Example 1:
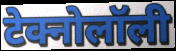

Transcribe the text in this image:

टेक्नोलॉली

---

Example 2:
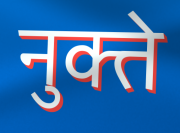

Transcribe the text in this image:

नुक्ते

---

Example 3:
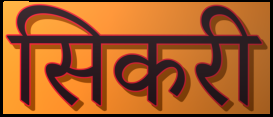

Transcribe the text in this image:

सिकरी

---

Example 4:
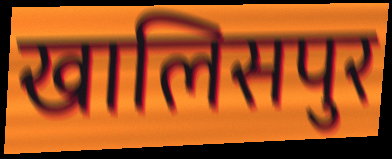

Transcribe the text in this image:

खालिसपुर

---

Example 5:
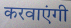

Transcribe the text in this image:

करवाएंगी